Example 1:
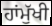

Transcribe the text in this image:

ਹਾਂਮੁੱਖੀ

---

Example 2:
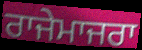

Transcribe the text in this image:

ਰਾਜੇਮਾਜਰਾ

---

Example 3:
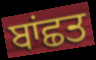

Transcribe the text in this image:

ਬਾਂਛਤ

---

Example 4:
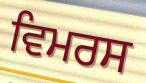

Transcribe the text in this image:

ਵਿਮਰਸ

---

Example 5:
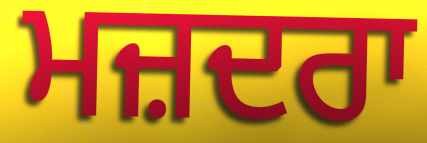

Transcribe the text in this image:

ਮਜ਼ਦਰਾ